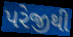
પરેજીથી